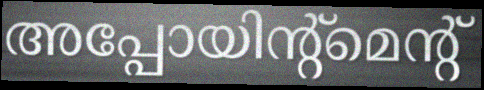
അപ്പോയിന്റ്മെന്റ്